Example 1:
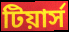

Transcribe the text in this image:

টিয়ার্স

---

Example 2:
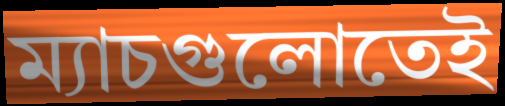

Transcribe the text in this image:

ম্যাচগুলোতেই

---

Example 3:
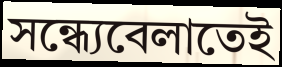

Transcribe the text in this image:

সন্ধ্যেবেলাতেই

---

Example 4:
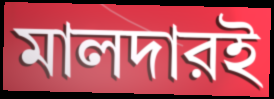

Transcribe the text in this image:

মালদারই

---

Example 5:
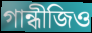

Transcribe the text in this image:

গান্ধীজিও